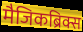
मैजिकब्रिक्स